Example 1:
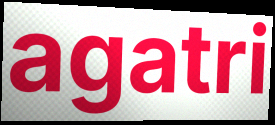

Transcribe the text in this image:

agatri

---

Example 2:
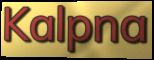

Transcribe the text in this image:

Kalpna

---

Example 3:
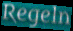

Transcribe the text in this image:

Regeln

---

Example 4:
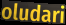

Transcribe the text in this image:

oludari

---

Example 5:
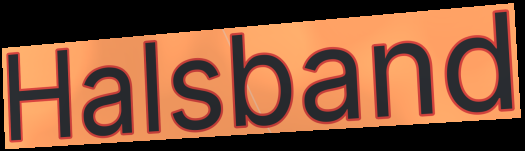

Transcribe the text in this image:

Halsband